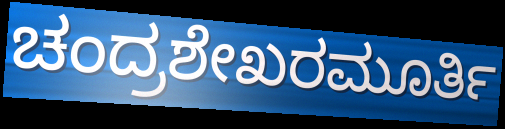
ಚಂದ್ರಶೇಖರಮೂರ್ತಿ